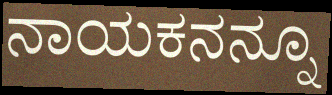
ನಾಯಕನನ್ನೂ